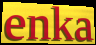
enka